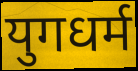
युगधर्म